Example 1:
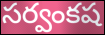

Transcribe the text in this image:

సర్వంకష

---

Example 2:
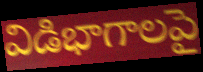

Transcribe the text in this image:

విడిభాగాలపై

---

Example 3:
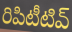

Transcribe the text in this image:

రిపిటీటివ్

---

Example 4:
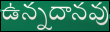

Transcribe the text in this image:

ఉన్నదానవు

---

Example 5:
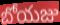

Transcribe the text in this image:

బోయజు